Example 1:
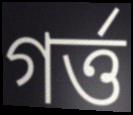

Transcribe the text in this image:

গর্ত্ত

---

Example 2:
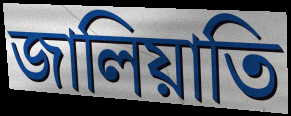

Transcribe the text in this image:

জালিয়াতি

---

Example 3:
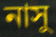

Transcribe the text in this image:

নাসু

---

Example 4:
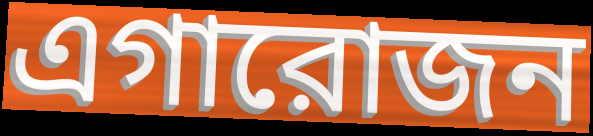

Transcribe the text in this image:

এগারোজন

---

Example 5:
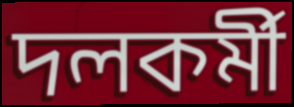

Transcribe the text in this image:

দলকর্মী